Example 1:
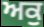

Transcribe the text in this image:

ਅਕੁ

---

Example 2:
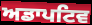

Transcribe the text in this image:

ਅਡਾਪਟਿਵ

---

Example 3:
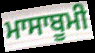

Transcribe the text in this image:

ਮਾਸਾਬੂਮੀ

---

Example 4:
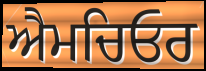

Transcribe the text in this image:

ਐਮਚਿਓਰ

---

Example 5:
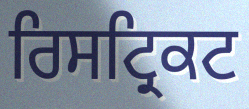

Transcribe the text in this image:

ਰਿਸਟ੍ਰਿਕਟ